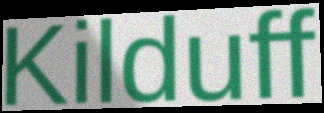
Kilduff